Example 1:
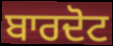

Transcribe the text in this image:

ਬਾਰਦੋਟ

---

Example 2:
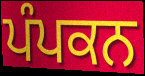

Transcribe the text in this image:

ਪੰਪਕਨ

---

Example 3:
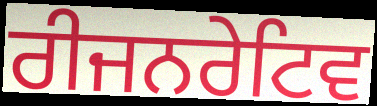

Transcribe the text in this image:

ਰੀਜਨਰੇਟਿਵ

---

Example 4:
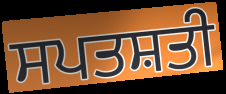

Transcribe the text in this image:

ਸਪਤਸ਼ਤੀ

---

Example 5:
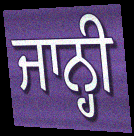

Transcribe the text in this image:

ਜਾਨ੍ਹੀ